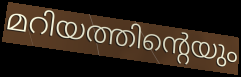
മറിയത്തിന്റെയും